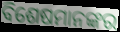
ବିଶେଷମାନଙ୍କର